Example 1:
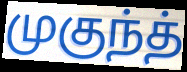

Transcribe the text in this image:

முகுந்த்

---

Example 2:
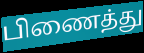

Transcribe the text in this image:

பிணைத்து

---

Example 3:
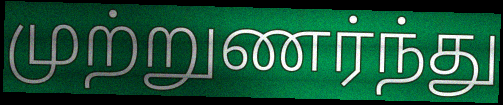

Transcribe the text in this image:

முற்றுணர்ந்து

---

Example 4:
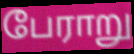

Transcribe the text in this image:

பேராறு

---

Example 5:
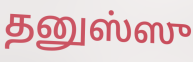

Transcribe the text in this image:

தனுஸ்ஸு